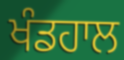
ਖੰਡਹਾਲ